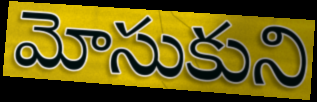
మోసుకుని